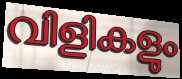
വിളികളും